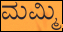
ಮಮ್ಮಿ